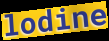
lodine